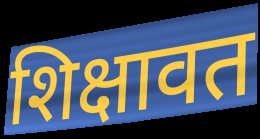
शिक्षावत